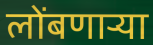
लोंबणार्‍या